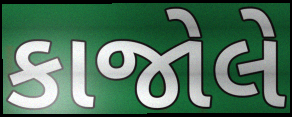
કાજોલે